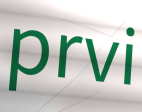
prvi